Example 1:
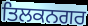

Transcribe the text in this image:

ਤਿਲਕਨਗਰ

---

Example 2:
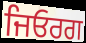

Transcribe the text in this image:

ਜਿਓਰਗ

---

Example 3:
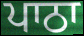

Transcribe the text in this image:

ਪਾਠਾ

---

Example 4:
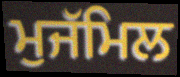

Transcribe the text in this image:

ਮੁਜੱਮਿਲ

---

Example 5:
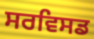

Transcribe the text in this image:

ਸਰਵਿਸਡ